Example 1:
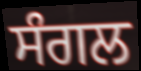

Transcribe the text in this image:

ਸੰਗਲ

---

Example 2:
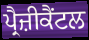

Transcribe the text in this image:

ਪ੍ਰੈਜ਼ੀਕੈਂਟਲ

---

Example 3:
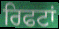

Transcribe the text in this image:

ਰਿਫਟਾਂ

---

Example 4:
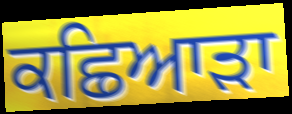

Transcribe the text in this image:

ਕਛਿਆੜਾ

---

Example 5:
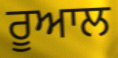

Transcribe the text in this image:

ਰੂਆਲ